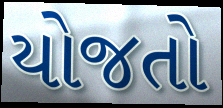
યોજતો